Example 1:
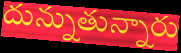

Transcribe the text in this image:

దున్నుతున్నారు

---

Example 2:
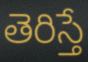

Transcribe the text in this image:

తెరిస్తే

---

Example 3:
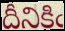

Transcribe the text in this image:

దీనికిఁ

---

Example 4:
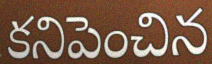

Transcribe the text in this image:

కనిపెంచిన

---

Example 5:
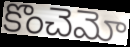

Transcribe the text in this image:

కొంచెమో